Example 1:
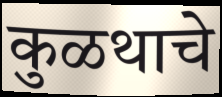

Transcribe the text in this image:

कुळथाचे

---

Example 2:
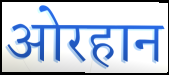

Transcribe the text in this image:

ओरहान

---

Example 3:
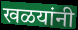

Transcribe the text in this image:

खळयांनी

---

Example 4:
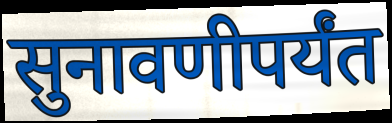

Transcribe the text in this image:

सुनावणीपर्यंत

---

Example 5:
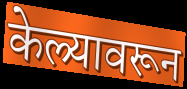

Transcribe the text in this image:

केल्यावरून